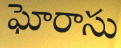
ఘోరాసు